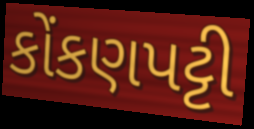
કોંકણપટ્ટી